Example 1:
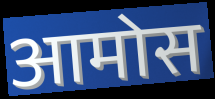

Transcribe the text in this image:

आमोस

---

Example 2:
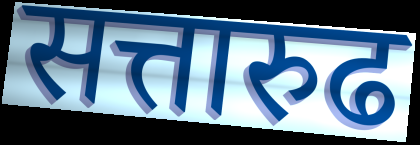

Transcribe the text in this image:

सत्तारुढ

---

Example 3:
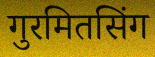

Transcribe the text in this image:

गुरमितसिंग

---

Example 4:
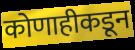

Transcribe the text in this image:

कोणाहीकडून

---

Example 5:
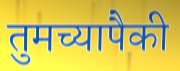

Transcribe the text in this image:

तुमच्यापैकी